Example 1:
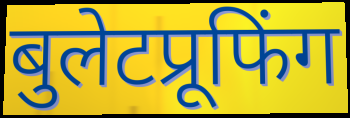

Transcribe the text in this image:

बुलेटप्रूफिंग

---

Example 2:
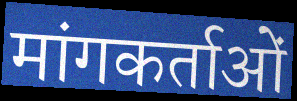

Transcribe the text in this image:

मांगकर्ताओं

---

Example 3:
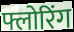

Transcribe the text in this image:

फ्लोरिंग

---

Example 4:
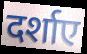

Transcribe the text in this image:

दर्शाए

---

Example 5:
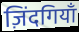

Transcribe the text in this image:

ज़िंदगियाँ